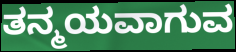
ತನ್ಮಯವಾಗುವ